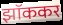
झॉककर